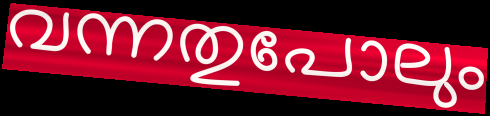
വന്നതുപോലും